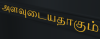
அளவுடையதாகும்